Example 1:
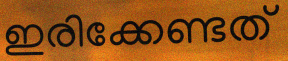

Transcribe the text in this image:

ഇരിക്കേണ്ടത്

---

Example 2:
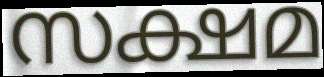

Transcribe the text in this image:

സക്ഷമ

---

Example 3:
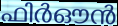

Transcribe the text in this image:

ഫിർഔൻ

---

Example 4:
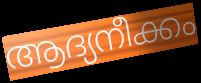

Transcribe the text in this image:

ആദ്യനീക്കം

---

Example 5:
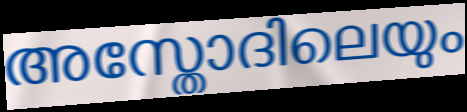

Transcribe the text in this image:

അസ്തോദിലെയും